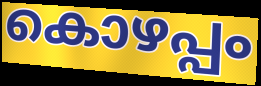
കൊഴപ്പം